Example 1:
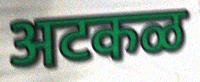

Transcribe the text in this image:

अटकळ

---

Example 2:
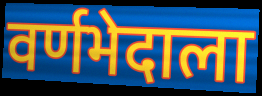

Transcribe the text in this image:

वर्णभेदाला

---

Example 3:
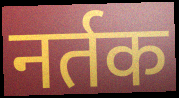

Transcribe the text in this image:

नर्तक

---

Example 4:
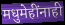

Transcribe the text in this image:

मधुमेहींनाही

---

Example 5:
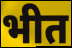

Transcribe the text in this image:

भीत